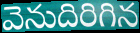
వెనుదిరిగిన